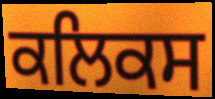
ਕਲਿਕਸ